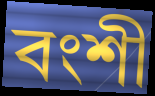
বংশী